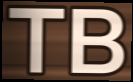
TB